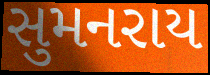
સુમનરાય